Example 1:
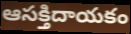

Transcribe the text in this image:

ఆసక్తిదాయకం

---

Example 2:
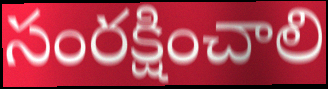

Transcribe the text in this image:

సంరక్షించాలి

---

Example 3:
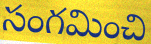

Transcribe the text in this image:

సంగమించి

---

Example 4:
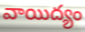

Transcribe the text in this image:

వాయిద్యం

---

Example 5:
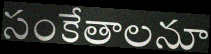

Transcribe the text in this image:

సంకేతాలనూ